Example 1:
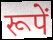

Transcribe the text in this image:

रूपें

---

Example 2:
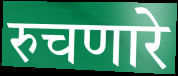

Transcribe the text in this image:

रुचणारे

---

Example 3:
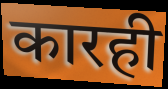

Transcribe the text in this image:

कारही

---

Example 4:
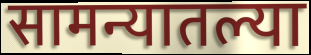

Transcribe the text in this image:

सामन्यातल्या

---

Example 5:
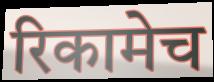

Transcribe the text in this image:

रिकामेच